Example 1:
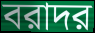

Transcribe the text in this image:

বরাদর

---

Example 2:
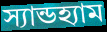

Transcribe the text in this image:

স্যান্ডহ্যাম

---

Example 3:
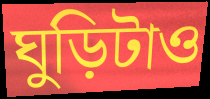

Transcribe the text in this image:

ঘুড়িটাও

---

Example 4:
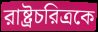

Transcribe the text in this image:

রাষ্ট্রচরিত্রকে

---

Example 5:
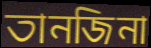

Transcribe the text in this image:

তানজিনা